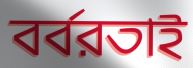
বর্বরতাই